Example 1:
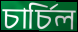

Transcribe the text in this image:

চার্চিল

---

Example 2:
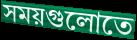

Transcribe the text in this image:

সময়গুলোতে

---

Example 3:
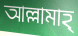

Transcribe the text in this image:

আল্লামাহ্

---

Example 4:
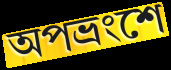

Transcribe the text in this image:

অপভ্রংশে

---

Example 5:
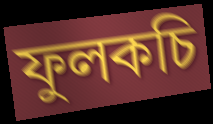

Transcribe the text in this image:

ফুলকচি